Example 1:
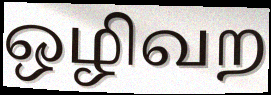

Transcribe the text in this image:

ஒழிவற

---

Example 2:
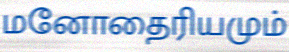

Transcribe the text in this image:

மனோதைரியமும்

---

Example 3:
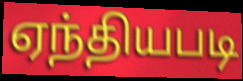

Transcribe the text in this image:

ஏந்தியபடி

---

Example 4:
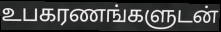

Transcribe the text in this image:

உபகரணங்களுடன்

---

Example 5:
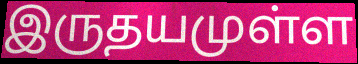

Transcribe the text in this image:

இருதயமுள்ள